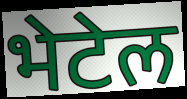
भेटेल